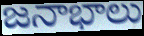
జనాభాలు